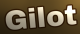
Gilot